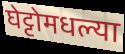
घेट्टोमधल्या